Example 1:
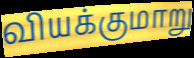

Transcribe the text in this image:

வியக்குமாறு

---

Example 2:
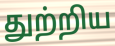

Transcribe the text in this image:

துற்றிய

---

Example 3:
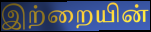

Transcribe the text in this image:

இற்றையின்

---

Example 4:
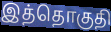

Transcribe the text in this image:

இத்தொகுதி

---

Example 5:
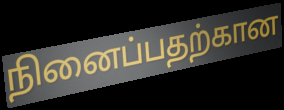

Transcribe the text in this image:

நினைப்பதற்கான